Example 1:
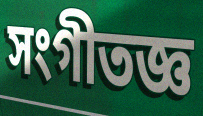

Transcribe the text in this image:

সংগীতজ্ঞ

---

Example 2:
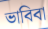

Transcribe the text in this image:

ভাবিবা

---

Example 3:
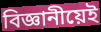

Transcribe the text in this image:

বিজ্ঞানীয়েই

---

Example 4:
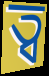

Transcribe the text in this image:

ত্ব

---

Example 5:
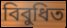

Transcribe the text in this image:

বিবুধিত